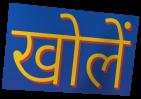
खोलें